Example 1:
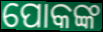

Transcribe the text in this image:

ପୋକଙ୍କ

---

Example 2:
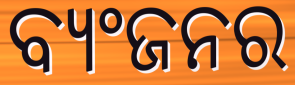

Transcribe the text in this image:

ବ୍ୟଂଜନର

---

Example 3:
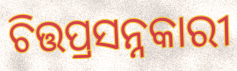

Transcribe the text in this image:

ଚିତ୍ତପ୍ରସନ୍ନକାରୀ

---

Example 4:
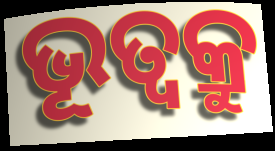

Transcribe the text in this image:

ଭୂତ୍ଵକ୍ରୁ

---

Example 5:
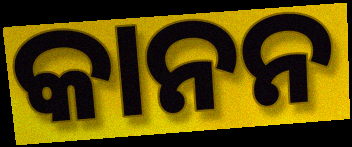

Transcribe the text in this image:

କାନନ